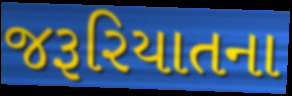
જરૂરિયાતના